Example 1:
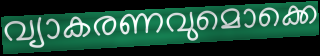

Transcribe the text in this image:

വ്യാകരണവുമൊക്കെ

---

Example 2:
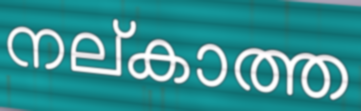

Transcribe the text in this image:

നല്കാത്ത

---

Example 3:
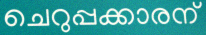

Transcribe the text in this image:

ചെറുപ്പക്കാരന്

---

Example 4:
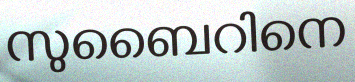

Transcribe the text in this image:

സുബൈറിനെ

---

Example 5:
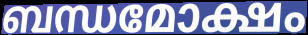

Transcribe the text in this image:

ബന്ധമോക്ഷം